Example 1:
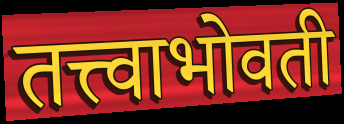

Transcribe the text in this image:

तत्त्वाभोवती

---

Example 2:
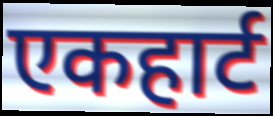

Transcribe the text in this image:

एकहार्ट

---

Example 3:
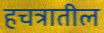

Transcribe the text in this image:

हचत्रातील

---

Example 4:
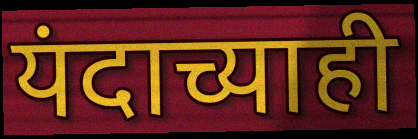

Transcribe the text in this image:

यंदाच्याही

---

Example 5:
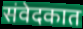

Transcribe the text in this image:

संवेदकात